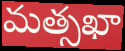
మత్సఖా